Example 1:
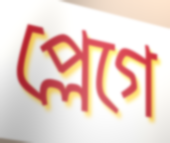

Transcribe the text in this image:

প্লেগে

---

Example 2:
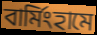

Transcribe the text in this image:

বার্মিংহামে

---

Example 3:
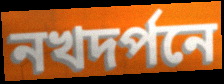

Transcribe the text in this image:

নখদর্পনে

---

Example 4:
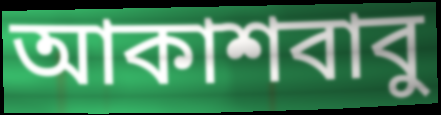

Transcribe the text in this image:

আকাশবাবু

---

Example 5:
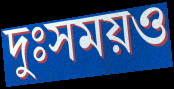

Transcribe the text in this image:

দুঃসময়ও